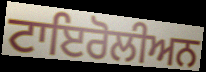
ਟਾਇਰੋਲੀਅਨ